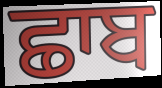
ਛਾਬ